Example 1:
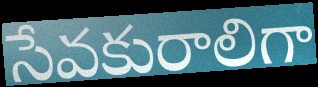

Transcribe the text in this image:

సేవకురాలిగా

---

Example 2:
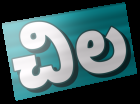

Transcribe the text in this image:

చిల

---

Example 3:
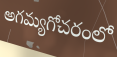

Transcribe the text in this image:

అగమ్యగోచరంలో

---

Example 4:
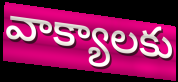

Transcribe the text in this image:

వాక్యాలకు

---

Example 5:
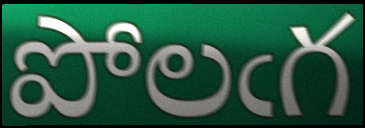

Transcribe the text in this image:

పోలఁగ